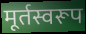
मूर्तस्वरूप